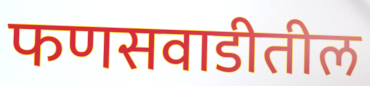
फणसवाडीतील